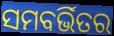
ସମବର୍ଭିତର